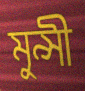
মুন্সী